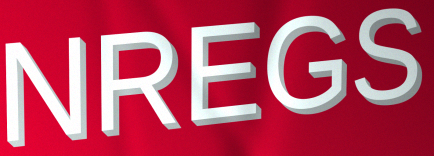
NREGS